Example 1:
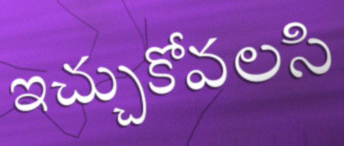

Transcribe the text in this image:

ఇచ్చుకోవలసి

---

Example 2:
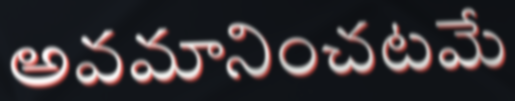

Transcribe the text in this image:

అవమానించటమే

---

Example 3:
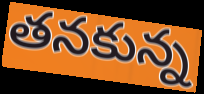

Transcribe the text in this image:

తనకున్న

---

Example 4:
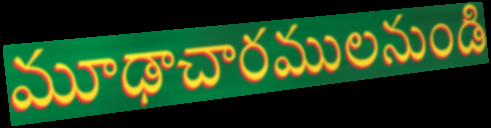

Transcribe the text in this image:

మూఢాచారములనుండి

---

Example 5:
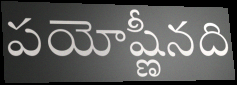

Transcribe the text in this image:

పయోష్ణీనది